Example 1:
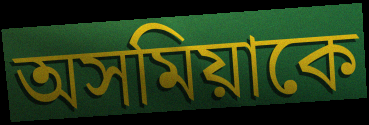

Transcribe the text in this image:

অসমিয়াকে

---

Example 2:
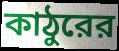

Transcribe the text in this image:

কাঠুরের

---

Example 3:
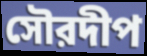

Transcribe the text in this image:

সৌরদীপ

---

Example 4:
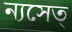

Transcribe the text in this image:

ন্যসেত্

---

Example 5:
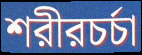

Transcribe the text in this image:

শরীরচর্চা